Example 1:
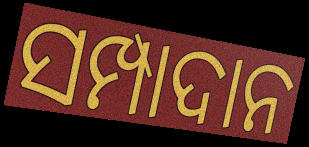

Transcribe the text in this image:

ସମ୍ପାଦାନ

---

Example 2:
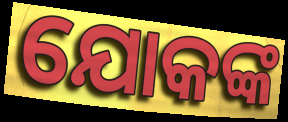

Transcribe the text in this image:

ଯୋକଙ୍କ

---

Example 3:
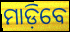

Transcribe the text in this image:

ମାଡ଼ିବେ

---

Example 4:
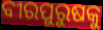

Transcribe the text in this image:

ବୀରପୁରୁଷକୁ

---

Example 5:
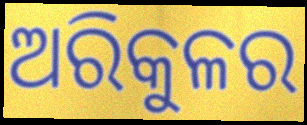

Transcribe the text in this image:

ଅରିକୁଳର